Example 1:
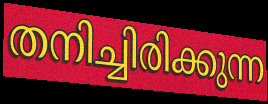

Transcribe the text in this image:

തനിച്ചിരിക്കുന്ന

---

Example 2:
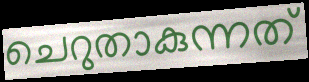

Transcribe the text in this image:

ചെറുതാകുന്നത്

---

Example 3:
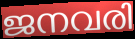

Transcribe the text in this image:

ജനവരി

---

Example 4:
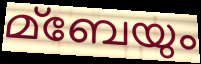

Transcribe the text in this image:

മ്ബേയും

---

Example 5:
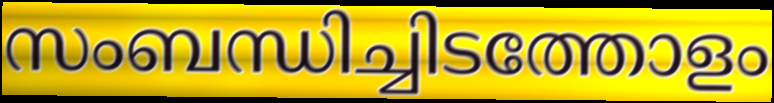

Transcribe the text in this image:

സംബന്ധിച്ചിടത്തോളം